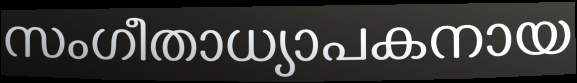
സംഗീതാധ്യാപകനായ